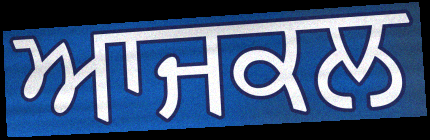
ਆਜਕਲ